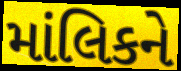
માંલિકને